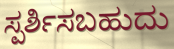
ಸ್ಪರ್ಶಿಸಬಹುದು